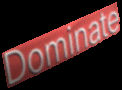
Dominate